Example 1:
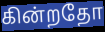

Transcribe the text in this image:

கின்றதோ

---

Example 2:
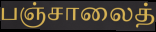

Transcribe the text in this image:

பஞ்சாலைத்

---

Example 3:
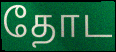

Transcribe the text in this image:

தோட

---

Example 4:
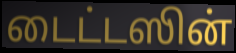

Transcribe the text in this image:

டைட்டஸின்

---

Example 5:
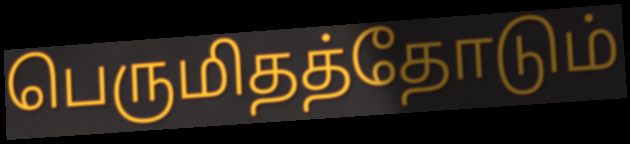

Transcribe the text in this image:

பெருமிதத்தோடும்